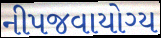
નીપજવાયોગ્ય